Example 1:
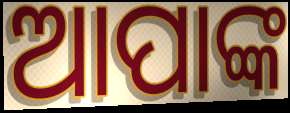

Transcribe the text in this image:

ଆପାଙ୍କ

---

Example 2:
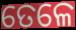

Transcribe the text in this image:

ତେଳେ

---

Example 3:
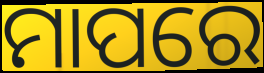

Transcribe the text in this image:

ମାପରେ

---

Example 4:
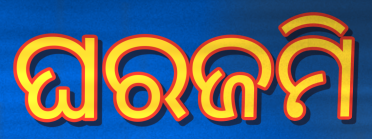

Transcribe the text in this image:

ଘରଜମି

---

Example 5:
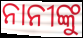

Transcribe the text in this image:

ନାନୀଙ୍କୁ